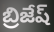
బ్రిజేష్